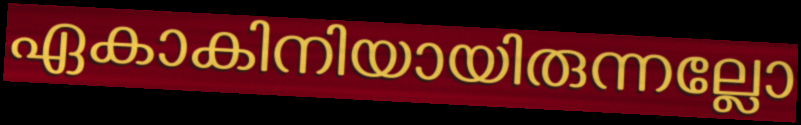
ഏകാകിനിയായിരുന്നല്ലോ